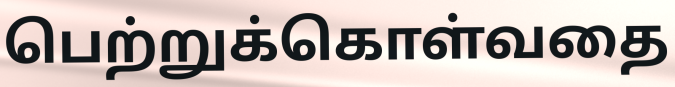
பெற்றுக்கொள்வதை